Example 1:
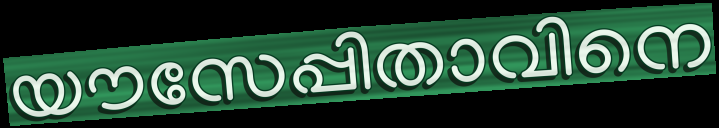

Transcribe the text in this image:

യൗസേപ്പിതാവിനെ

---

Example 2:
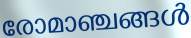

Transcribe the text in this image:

രോമാഞ്ചങ്ങൾ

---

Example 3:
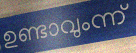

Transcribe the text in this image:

ഉണ്ടാവുംന്ന്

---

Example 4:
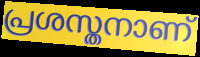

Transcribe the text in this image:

പ്രശസ്തനാണ്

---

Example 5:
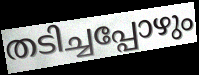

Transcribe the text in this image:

തടിച്ചപ്പോഴും